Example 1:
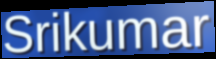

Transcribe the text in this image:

Srikumar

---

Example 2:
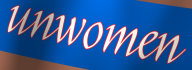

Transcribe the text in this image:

unwomen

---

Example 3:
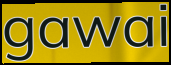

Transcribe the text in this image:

gawai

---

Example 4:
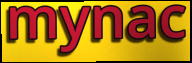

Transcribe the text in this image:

mynac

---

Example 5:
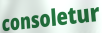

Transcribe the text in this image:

consoletur